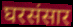
घरसंसार